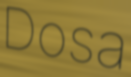
Dosa